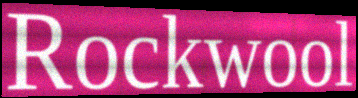
Rockwool